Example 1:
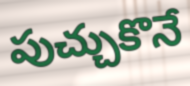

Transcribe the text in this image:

పుచ్చుకొనే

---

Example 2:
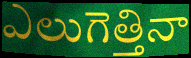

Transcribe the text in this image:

ఎలుగెత్తినా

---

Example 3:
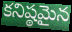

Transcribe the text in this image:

కనిష్ఠమైన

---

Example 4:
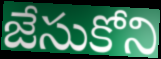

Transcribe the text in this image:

జేసుకోని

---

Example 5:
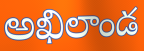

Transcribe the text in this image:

అఖిలాండ